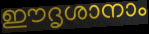
ഈദൃശാനാം